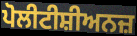
ਪੋਲੀਟੀਸ਼ੀਅਨਜ਼